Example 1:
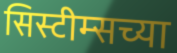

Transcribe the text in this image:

सिस्टीम्सच्या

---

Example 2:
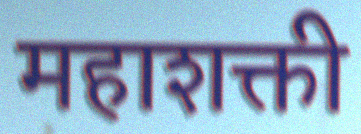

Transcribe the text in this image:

महाशक्ती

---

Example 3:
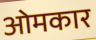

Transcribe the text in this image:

ओमकार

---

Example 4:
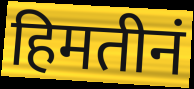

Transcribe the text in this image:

हिमतीनं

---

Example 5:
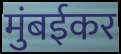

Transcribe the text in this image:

मुंबईकर